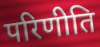
परिणीति